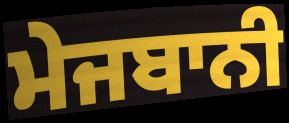
ਮੇਜਬਾਨੀ